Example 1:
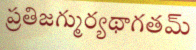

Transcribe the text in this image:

ప్రతిజగ్ముర్యథాగతమ్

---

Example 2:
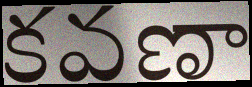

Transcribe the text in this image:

కవణా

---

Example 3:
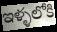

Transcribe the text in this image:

ఇళ్ళలోకి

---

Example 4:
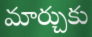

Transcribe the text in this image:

మార్చుకు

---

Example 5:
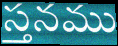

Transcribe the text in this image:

స్తనము